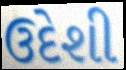
ઉદેશી